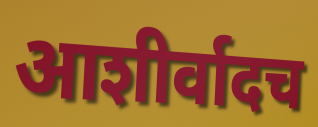
आशीर्वादच